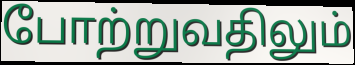
போற்றுவதிலும்